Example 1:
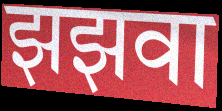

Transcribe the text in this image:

झझवा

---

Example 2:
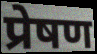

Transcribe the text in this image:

प्रेषण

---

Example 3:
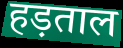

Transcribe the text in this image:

हड़ताल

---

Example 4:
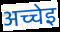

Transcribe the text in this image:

अच्चेइ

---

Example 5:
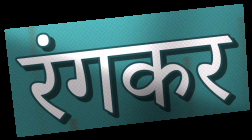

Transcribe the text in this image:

रंगकर